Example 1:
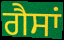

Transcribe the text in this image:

ਗੈਸਾਂ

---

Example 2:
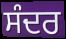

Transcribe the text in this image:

ਸੰਦਰ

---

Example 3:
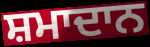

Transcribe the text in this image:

ਸ਼ਮਾਦਾਨ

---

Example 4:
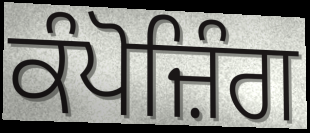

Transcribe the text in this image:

ਕੰਪੋਜ਼ਿੰਗ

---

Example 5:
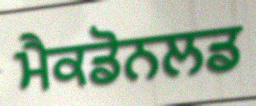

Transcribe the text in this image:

ਮੈਕਡੋਨਲਡ